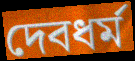
দেবধর্ম